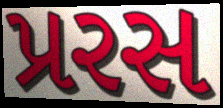
પ્રરસ